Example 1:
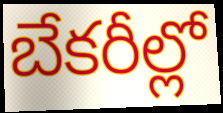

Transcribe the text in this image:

బేకరీల్లో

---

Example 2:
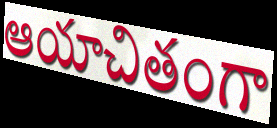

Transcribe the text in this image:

ఆయాచితంగా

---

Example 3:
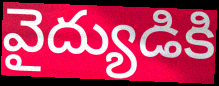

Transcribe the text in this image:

వైద్యుడికి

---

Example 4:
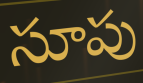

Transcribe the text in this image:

సూపు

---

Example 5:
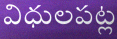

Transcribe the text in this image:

విధులపట్ల